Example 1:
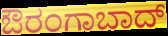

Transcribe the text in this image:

ಔರಂಗಾಬಾದ್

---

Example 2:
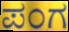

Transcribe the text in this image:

ಪಂಗ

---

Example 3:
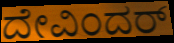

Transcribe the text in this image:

ದೇವಿಂದರ್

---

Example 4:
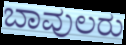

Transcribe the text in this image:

ಬಾವುಲರು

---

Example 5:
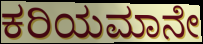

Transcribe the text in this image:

ಕರಿಯಮಾನೇ